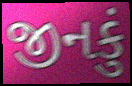
જીનકું